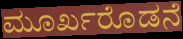
ಮೂರ್ಖರೊಡನೆ